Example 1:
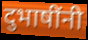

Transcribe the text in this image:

दुभाषींनी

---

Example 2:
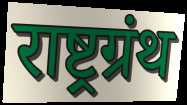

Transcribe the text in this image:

राष्ट्रग्रंथ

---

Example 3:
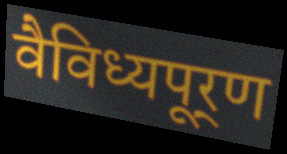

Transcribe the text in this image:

वैविध्यपूर्ण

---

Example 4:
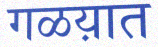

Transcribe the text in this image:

गळय़ात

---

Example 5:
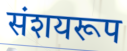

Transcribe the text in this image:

संशयरूप